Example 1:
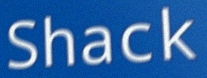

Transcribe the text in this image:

Shack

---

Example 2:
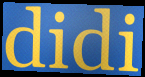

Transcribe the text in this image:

didi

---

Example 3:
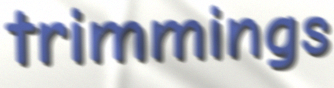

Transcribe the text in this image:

trimmings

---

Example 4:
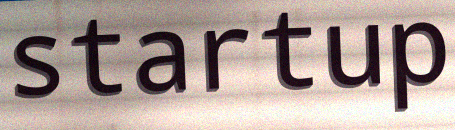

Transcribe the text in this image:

startup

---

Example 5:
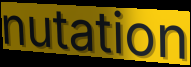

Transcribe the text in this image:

nutation